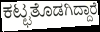
ಕಟ್ಟತೊಡಗಿದ್ದಾರೆ